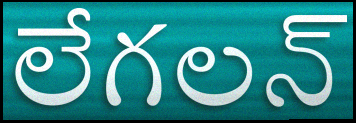
లేగలన్